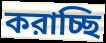
করাচ্ছি